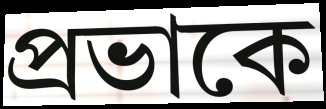
প্রভাকে